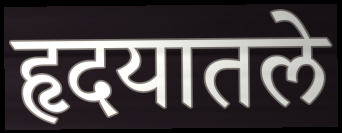
हृदयातले